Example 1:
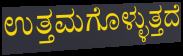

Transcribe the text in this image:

ಉತ್ತಮಗೊಳ್ಳುತ್ತದೆ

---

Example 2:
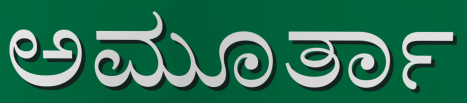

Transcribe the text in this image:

ಅಮೂರ್ತಾ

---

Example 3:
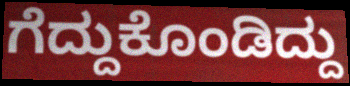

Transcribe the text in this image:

ಗೆದ್ದುಕೊಂಡಿದ್ದು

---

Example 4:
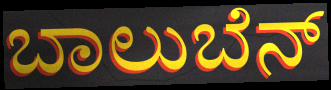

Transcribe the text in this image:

ಬಾಲುಬೆನ್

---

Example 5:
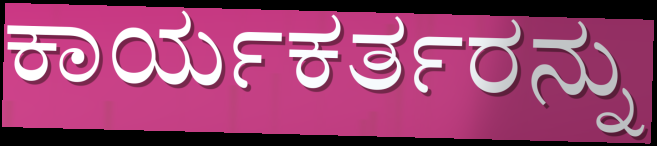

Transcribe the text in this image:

ಕಾರ್ಯಕರ್ತರನ್ನು